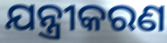
ଯନ୍ତ୍ରୀକରଣ